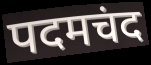
पदमचंद